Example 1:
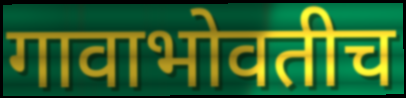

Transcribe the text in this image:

गावाभोवतीच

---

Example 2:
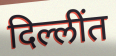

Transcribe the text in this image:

दिल्लींत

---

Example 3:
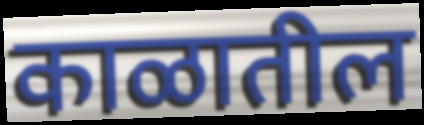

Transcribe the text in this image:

काळातील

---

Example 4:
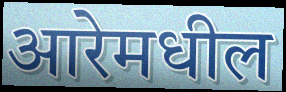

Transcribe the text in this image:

आरेमधील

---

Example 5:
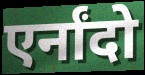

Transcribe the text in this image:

एर्नांदो